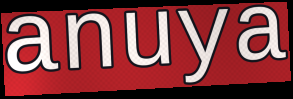
anuya